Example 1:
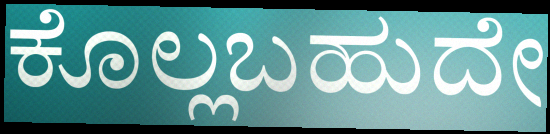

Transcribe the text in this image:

ಕೊಲ್ಲಬಹುದೇ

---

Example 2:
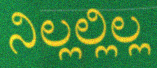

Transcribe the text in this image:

ನಿಲ್ಲಲ್ಲಿಲ್ಲ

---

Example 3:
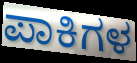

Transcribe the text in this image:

ಪಾಕಿಗಳ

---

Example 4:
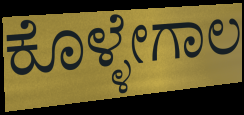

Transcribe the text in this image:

ಕೊಳ್ಳೇಗಾಲ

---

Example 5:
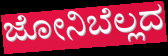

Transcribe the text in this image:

ಜೋನಿಬೆಲ್ಲದ